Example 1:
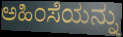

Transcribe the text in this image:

ಅಹಿಂಸೆಯನ್ನು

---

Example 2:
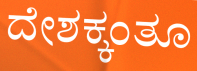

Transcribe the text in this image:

ದೇಶಕ್ಕಂತೂ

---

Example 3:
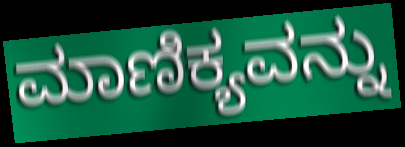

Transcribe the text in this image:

ಮಾಣಿಕ್ಯವನ್ನು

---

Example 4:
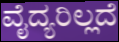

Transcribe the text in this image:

ವೈದ್ಯರಿಲ್ಲದೆ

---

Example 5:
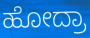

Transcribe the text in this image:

ಹೋದ್ರಾ